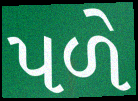
પળે